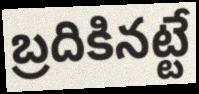
బ్రదికినట్టే